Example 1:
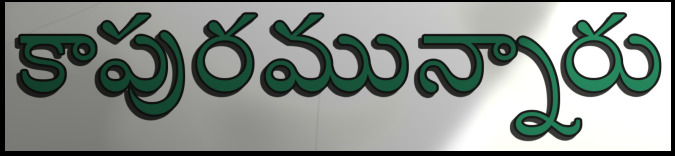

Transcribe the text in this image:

కాపురమున్నారు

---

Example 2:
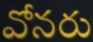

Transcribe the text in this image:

వోనరు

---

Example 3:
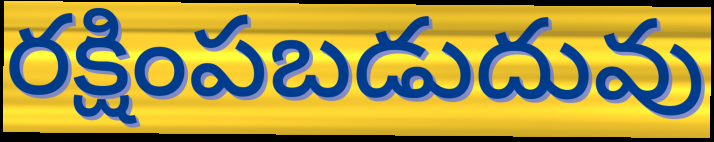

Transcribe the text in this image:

రక్షింపబడుదువు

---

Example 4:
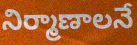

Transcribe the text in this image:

నిర్మాణాలనే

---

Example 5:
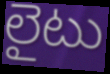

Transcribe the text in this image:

లైటు